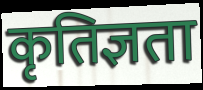
कृतिज्ञता